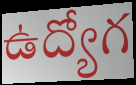
ఉద్యోగ